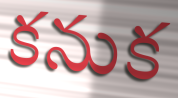
కనుక